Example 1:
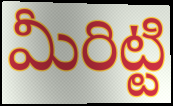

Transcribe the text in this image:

మీరిట్టి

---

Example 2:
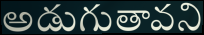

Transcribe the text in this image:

అడుగుతావని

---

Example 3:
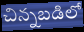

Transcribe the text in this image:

చిన్నబడిలో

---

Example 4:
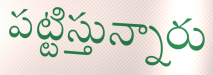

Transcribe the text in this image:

పట్టిస్తున్నారు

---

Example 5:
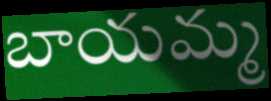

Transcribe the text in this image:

బాయమ్మ